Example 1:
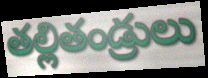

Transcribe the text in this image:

తల్లితండ్రులు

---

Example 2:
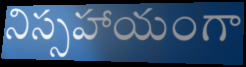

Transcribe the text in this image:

నిస్సహాయంగా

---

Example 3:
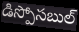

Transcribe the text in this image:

డిస్పోసబుల్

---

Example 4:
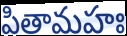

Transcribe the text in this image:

పితామహః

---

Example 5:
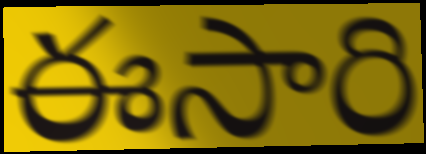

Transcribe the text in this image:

ఈసారి